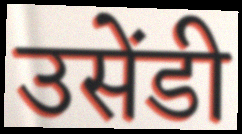
उसेंडी